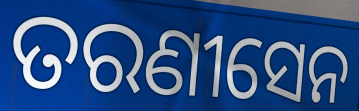
ତରଣୀସେନ